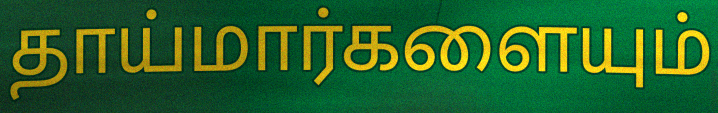
தாய்மார்களையும்